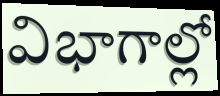
విభాగాల్లో